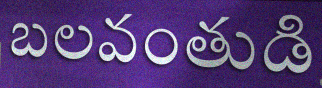
బలవంతుడి